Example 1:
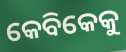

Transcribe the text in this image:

କେବିକେକୁ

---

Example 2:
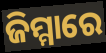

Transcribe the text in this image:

ଜିମ୍ମାରେ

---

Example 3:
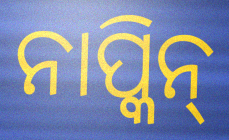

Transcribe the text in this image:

ନାପ୍କିନ୍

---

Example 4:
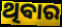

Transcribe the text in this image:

ଥିଵାର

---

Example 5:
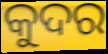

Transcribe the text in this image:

କୁଦର